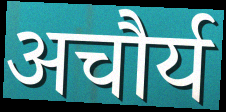
अचौर्य